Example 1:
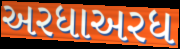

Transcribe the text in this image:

અરધાઅરધ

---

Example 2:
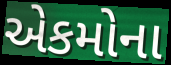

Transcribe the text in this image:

એકમોના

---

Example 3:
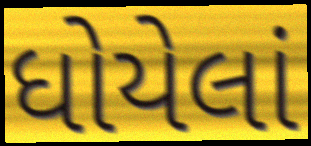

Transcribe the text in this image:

ધોયેલાં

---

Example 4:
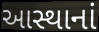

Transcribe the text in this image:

આસ્થાનાં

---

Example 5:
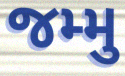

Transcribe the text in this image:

જમ્મુ